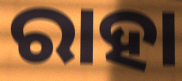
ରାହା